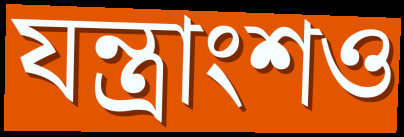
যন্ত্রাংশও